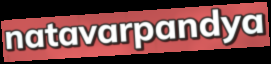
natavarpandya